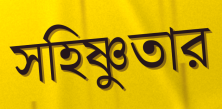
সহিষ্ণুতার